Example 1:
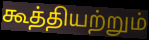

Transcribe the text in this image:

கூத்தியற்றும்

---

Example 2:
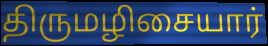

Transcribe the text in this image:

திருமழிசையார்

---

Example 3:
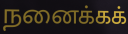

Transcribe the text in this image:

நனைக்கக்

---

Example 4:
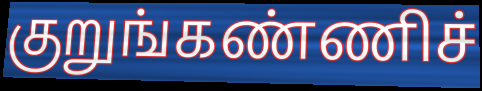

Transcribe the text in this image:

குறுங்கண்ணிச்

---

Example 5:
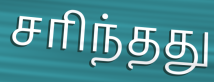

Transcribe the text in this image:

சரிந்தது